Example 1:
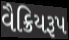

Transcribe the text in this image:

વૈક્રિયરૂપ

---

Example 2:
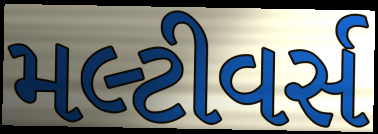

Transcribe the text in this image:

મલ્ટીવર્સ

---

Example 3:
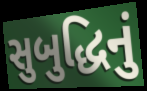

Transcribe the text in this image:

સુબુદ્ધિનું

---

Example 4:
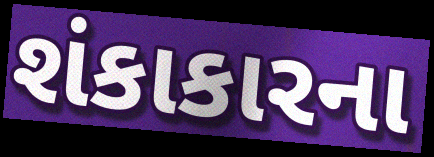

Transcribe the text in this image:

શંકાકારના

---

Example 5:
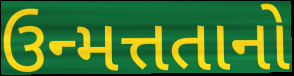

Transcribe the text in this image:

ઉન્મત્તતાનો